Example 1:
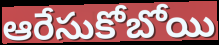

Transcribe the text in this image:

ఆరేసుకోబోయి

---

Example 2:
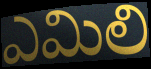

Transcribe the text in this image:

ఎమిలి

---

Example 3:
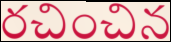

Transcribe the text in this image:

రచించిన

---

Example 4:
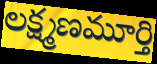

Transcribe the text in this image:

లక్ష్మణమూర్తి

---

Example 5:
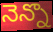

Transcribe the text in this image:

నెన్నొ